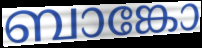
ബാങ്കോ